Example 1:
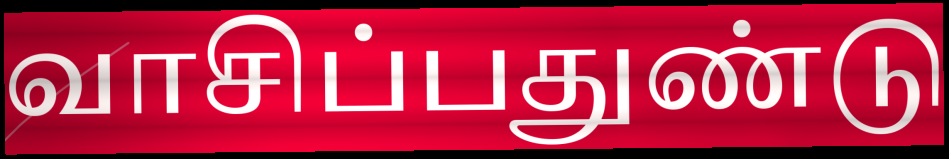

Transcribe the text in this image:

வாசிப்பதுண்டு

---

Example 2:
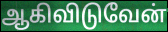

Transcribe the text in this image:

ஆகிவிடுவேன்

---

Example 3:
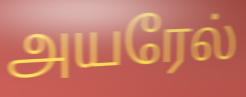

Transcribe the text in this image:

அயரேல்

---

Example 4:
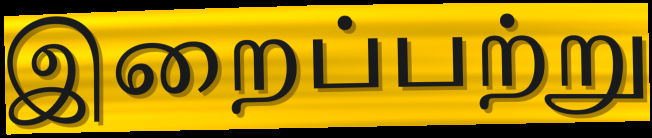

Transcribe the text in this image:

இறைப்பற்று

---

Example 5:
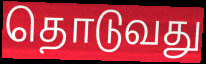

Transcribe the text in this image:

தொடுவது